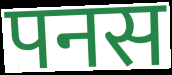
पनस